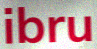
ibru